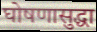
घोषणासुद्धा